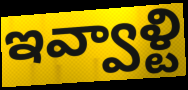
ఇవ్వాళ్టి